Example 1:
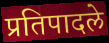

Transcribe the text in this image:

प्रतिपादले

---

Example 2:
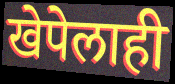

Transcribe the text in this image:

खेपेलाही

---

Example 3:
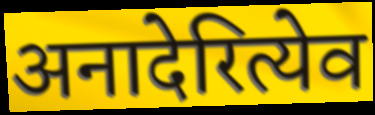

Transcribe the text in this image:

अनादेरित्येव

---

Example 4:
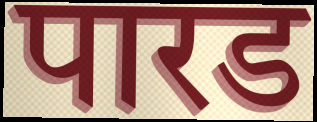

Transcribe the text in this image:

पारड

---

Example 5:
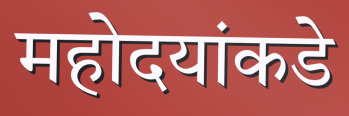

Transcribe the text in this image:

महोदयांकडे